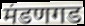
मंडणगड